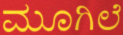
ಮೂಗಿಲೆ